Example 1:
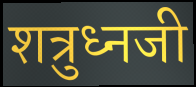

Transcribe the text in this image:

शत्रुध्नजी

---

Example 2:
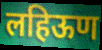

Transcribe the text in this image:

लहिऊण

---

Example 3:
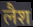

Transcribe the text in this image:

लैश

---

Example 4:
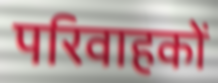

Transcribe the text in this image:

परिवाहकों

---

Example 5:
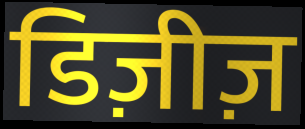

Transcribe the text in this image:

डिज़ीज़